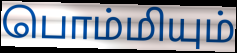
பொம்மியும்